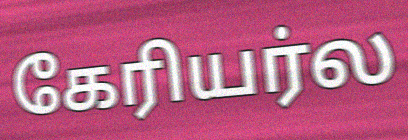
கேரியர்ல